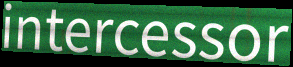
intercessor